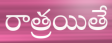
రాత్రయితే